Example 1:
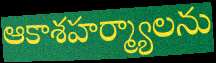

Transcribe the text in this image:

ఆకాశహర్మ్యాలను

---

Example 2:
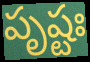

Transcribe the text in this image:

పృష్టః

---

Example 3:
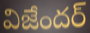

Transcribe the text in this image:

విజేందర్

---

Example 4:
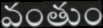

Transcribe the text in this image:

వంతుం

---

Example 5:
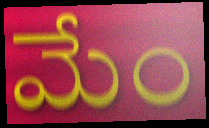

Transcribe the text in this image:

మేం